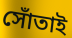
সোঁতাই